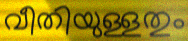
വീതിയുള്ളതും